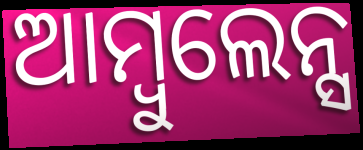
ଆମ୍ବୁଲେନ୍ସ